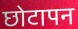
छोटापन